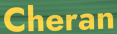
Cheran